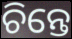
ଚିନ୍ତେ